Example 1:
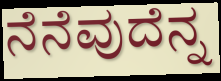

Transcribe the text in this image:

ನೆನೆವುದೆನ್ನ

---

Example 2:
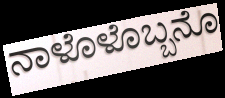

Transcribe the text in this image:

ನಾಳೊಳೊಬ್ಬನೊ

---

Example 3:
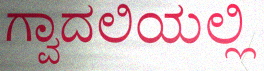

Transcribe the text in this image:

ಗ್ವಾದಲಿಯಲ್ಲಿ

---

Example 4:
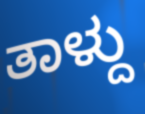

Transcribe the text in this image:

ತಾಳ್ದು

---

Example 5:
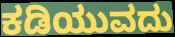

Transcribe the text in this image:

ಕಡಿಯುವದು